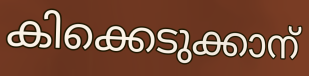
കിക്കെടുക്കാന്